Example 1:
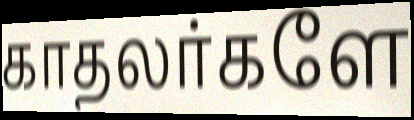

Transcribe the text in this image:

காதலர்களே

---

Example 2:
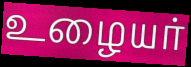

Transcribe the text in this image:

உழையர்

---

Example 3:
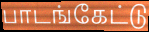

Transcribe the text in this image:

பாடங்கேட்டு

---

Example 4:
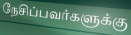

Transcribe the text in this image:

நேசிப்பவர்களுக்கு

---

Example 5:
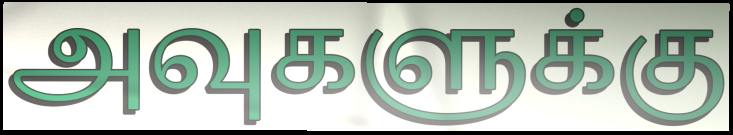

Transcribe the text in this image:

அவுகளுக்கு